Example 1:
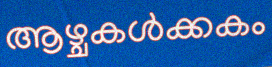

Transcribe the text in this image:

ആഴ്ചകൾക്കകം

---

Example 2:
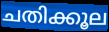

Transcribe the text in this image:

ചതിക്കൂല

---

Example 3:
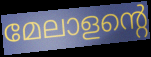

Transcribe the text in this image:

മേലാളന്റെ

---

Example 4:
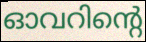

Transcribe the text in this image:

ഓവറിന്റെ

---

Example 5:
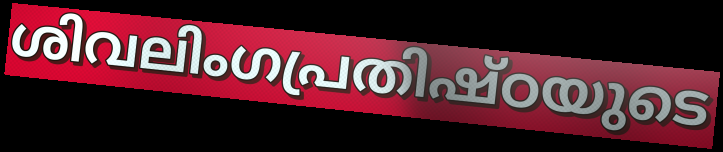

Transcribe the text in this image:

ശിവലിംഗപ്രതിഷ്ഠയുടെ